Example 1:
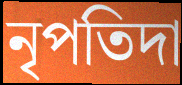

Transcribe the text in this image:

নৃপতিদা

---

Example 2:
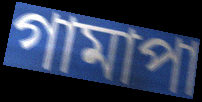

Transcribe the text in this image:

গামাপা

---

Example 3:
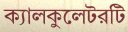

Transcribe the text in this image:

ক্যালকুলেটরটি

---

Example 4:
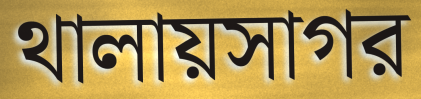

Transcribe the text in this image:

থালায়সাগর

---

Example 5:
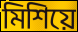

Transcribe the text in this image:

মিশিয়ে